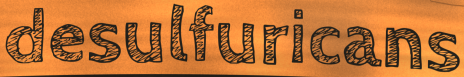
desulfuricans